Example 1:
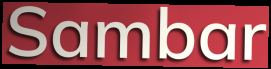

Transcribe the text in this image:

Sambar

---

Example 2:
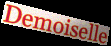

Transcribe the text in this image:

Demoiselle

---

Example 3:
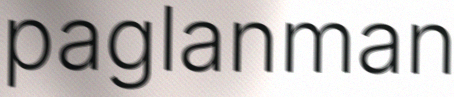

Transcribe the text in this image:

paglanman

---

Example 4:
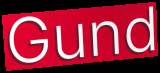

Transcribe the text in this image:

Gund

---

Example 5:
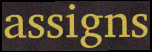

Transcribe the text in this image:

assigns